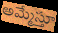
అమ్మేస్తూ